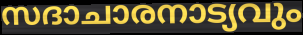
സദാചാരനാട്യവും